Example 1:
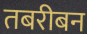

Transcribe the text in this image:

तबरीबन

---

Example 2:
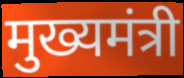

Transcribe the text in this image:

मुख्‍यमंत्री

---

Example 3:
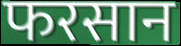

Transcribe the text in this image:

फरसान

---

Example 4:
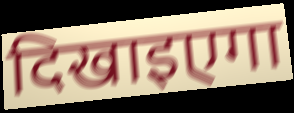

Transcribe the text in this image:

दिखाइएगा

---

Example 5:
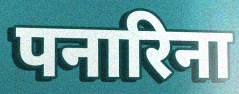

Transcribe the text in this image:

पनारिना